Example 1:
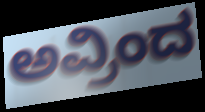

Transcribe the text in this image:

ಅವ್ರಿಂದ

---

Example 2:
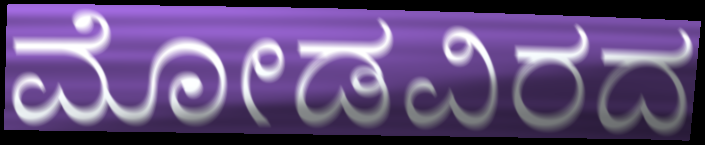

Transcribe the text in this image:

ಮೋಡವಿರದ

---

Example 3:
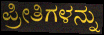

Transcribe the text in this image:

ಪ್ರೀತಿಗಳನ್ನು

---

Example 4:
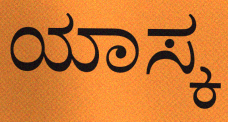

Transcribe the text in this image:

ಯಾಸ್ಕ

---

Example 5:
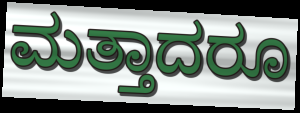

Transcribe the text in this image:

ಮತ್ತಾದರೂ